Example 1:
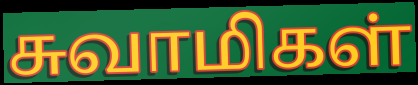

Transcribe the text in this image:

சுவாமிகள்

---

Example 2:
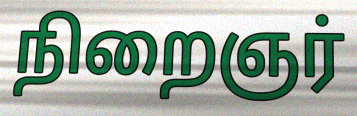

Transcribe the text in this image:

நிறைஞர்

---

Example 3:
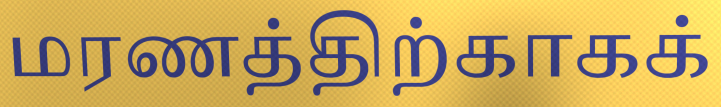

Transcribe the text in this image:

மரணத்திற்காகக்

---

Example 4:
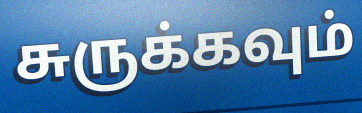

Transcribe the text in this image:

சுருக்கவும்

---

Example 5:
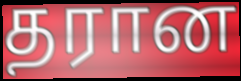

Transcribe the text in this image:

தரான